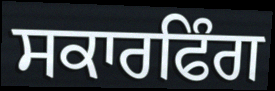
ਸਕਾਰਫਿੰਗ